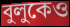
বুলুকেও